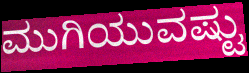
ಮುಗಿಯುವಷ್ಟು